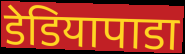
डेडियापाडा